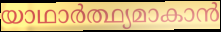
യാഥാർത്ഥ്യമാകാൻ